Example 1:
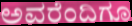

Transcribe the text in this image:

ಅವರೆಂದಿಗೂ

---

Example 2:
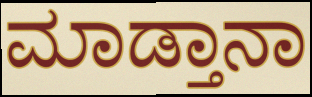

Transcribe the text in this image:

ಮಾಡ್ತಾನಾ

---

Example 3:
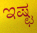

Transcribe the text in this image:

ಇಷ್ಟ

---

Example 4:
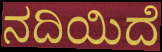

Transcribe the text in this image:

ನದಿಯಿದೆ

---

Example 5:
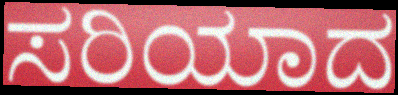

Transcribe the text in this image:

ಸರಿಯಾದ